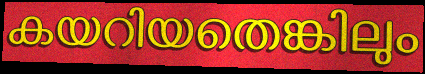
കയറിയതെങ്കിലും